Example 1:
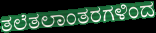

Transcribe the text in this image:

ತಲೆತಲಾಂತರಗಳಿಂದ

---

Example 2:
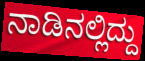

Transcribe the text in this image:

ನಾಡಿನಲ್ಲಿದ್ದು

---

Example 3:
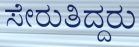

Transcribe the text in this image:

ಸೇರುತಿದ್ದರು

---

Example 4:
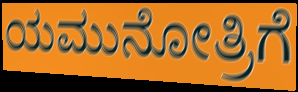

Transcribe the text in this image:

ಯಮುನೋತ್ರಿಗೆ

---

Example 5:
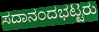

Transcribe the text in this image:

ಸದಾನಂದಭಟ್ಟರು